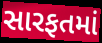
સારફતમાં